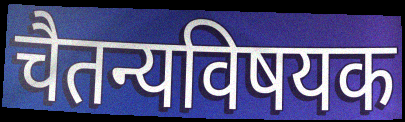
चैतन्यविषयक